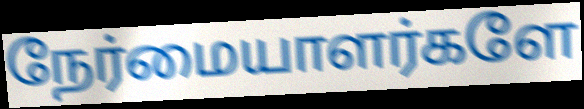
நேர்மையாளர்களே